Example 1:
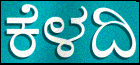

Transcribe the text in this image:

ಕೆಳದಿ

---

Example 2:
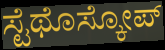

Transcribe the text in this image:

ಸ್ಟೆಥೊಸ್ಕೋಪ್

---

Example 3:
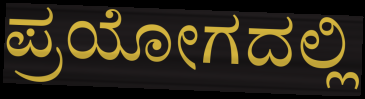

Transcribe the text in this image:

ಪ್ರಯೋಗದಲ್ಲಿ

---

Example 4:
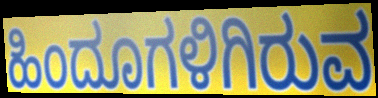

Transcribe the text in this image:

ಹಿಂದೂಗಳಿಗಿರುವ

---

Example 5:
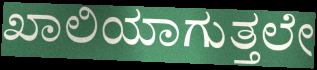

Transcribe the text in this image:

ಖಾಲಿಯಾಗುತ್ತಲೇ